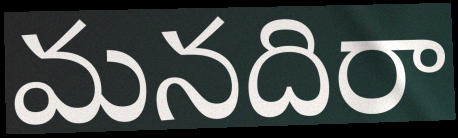
మనదిరా